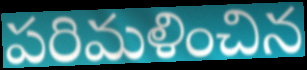
పరిమళించిన